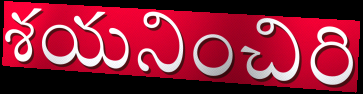
శయనించిరి